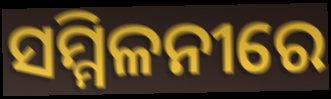
ସମ୍ମିଳନୀରେ